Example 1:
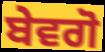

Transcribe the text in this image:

ਬੇਵਗੋ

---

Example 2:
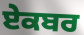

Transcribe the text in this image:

ਏਕਬਰ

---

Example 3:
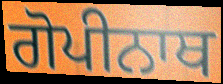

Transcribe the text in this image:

ਗੋਪੀਨਾਥ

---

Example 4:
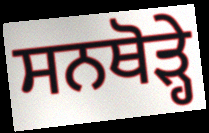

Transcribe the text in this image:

ਸਨਥੋੜ੍ਹੇ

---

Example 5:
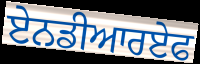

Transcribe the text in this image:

ਏਨਡੀਆਰਏਫ